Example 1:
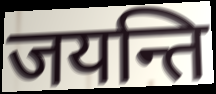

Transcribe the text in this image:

जयन्ति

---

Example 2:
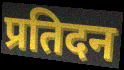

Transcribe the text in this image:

प्रतिदन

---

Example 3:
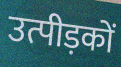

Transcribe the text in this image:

उत्पीड़कों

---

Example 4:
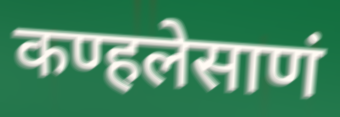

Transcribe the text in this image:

कण्हलेसाणं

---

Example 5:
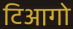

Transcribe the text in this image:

टिआगो